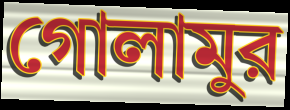
গোলামুর